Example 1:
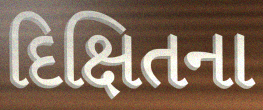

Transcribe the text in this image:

દિક્ષિતના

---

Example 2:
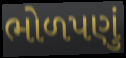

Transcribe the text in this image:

ભોળપણું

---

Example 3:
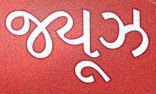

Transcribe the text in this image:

જ્યૂઝ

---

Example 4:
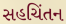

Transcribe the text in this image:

સહચિંતન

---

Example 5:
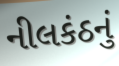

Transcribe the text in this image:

નીલકંઠનું